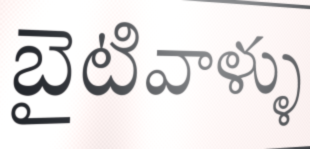
బైటివాళ్ళు